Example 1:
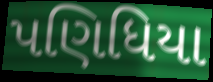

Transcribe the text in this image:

પણિધિયા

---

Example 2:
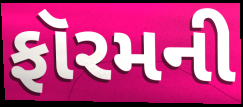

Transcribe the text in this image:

ફૉરમની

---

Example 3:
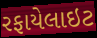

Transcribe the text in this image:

રફાયેલાઇટ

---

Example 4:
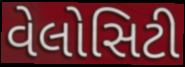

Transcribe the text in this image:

વેલોસિટી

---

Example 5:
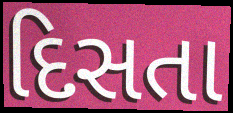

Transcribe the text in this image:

દિસતા